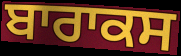
ਬਾਰਾਕਸ